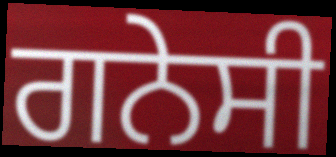
ਗਨੇਸੀ